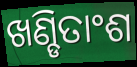
ଖଣ୍ଡିତାଂଶ